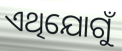
ଏଥିଯୋଗୁଁ